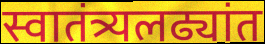
स्वातंत्र्यलढ्यांत